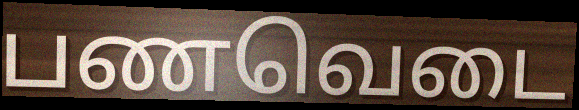
பணவெடை